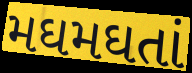
મઘમઘતાં